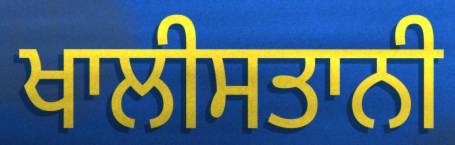
ਖਾਲੀਸਤਾਨੀ